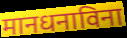
मानधनाविना